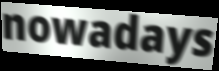
nowadays